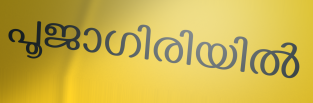
പൂജാഗിരിയിൽ